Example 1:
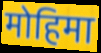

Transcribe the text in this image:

मोहिमा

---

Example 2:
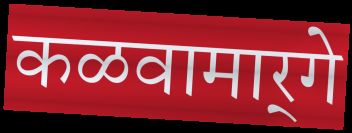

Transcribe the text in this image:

कळवामार्गे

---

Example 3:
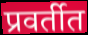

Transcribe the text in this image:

प्रवर्तीत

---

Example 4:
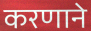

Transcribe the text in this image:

करणाने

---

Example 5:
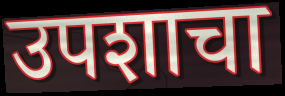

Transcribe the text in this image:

उपशाचा